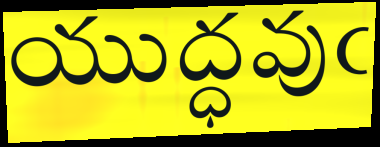
యుద్ధవుఁ